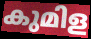
കുമിള